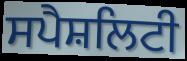
ਸਪੈਸ਼ਲਿਟੀ